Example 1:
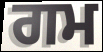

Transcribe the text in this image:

ਗਮ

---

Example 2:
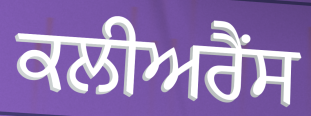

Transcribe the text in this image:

ਕਲੀਅਰੈਂਸ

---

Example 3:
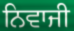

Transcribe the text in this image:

ਨਿਵਾਜੀ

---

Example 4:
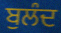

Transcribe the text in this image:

ਬੁਲੰਦ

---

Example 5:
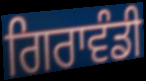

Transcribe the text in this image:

ਗਿਰਾਵੰਡੀ